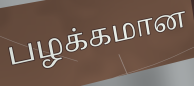
பழக்கமான